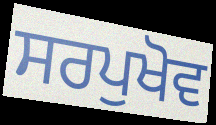
ਸਰਪੁਖੋਵ